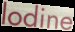
lodine